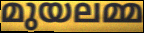
മുയലമ്മ